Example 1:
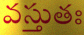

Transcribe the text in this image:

వస్తుతః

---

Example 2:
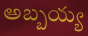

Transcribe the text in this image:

అబ్బయ్య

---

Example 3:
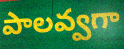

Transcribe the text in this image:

పాలవ్వగా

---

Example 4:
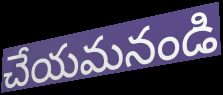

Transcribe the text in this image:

చేయమనండి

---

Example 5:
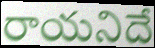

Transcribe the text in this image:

రాయనిదే